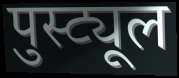
पुस्ट्यूल